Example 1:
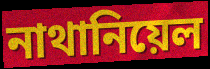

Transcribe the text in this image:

নাথানিয়েল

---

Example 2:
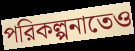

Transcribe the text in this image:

পরিকল্পনাতেও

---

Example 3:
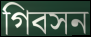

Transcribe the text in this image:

গিবসন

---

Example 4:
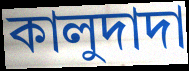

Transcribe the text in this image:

কালুদাদা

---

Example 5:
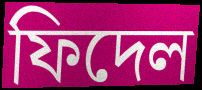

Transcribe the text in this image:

ফিদেল